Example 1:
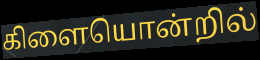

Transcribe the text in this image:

கிளையொன்றில்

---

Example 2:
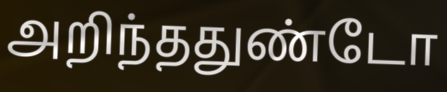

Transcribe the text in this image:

அறிந்ததுண்டோ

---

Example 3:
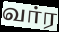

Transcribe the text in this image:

வர்ர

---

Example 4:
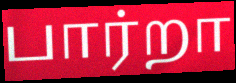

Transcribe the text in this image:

பார்றா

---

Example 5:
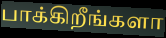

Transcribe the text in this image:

பாக்கிறீங்களா